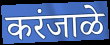
करंजाळे